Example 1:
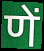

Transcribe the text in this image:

णें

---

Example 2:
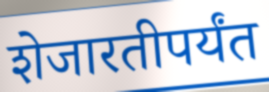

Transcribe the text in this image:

शेजारतीपर्यंत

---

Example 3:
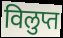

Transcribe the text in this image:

विलुप्त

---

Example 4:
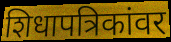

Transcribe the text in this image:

शिधापत्रिकांवर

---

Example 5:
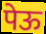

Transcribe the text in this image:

पेऊ